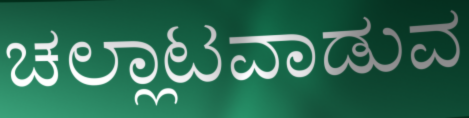
ಚಲ್ಲಾಟವಾಡುವ